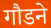
गौडने